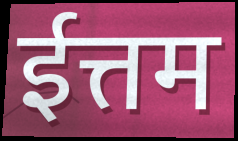
ईत्तम